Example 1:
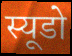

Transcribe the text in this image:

स्यूडो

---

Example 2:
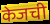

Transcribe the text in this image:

केजची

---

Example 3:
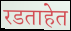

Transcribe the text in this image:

रडताहेत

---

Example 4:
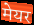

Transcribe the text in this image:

मेयर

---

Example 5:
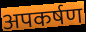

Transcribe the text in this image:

अपकर्षण